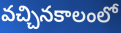
వచ్చినకాలంలో